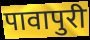
पावापुरी